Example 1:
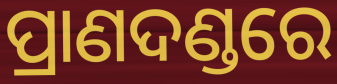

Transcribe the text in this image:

ପ୍ରାଣଦଣ୍ଡରେ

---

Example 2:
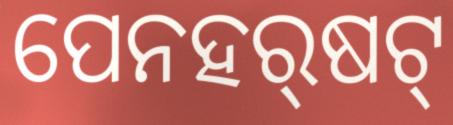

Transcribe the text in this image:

ପେନହର୍‍ଷଟ୍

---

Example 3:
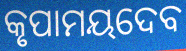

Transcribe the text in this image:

କୃପାମୟଦେବ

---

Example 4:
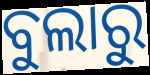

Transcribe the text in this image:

ବୁଲାରୁ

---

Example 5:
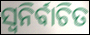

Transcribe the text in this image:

ସ୍ୱନିର୍ବାଚିତ